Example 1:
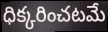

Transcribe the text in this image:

ధిక్కరించటమే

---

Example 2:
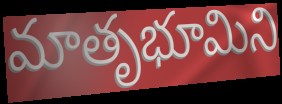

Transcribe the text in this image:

మాతృభూమిని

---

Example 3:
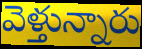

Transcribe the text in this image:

వెళ్తున్నారు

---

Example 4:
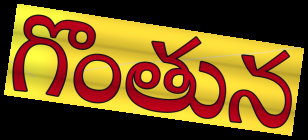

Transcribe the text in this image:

గొంతున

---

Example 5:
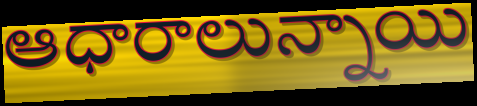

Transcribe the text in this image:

ఆధారాలున్నాయి